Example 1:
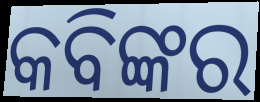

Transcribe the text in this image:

କବିଙ୍କର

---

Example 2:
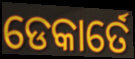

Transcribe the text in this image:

ଡେକାର୍ତେ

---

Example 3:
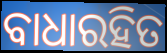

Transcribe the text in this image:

ବାଧାରହିତ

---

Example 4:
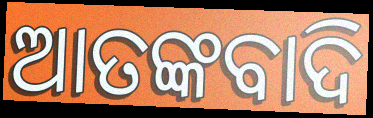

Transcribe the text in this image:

ଆତଙ୍କବାଦି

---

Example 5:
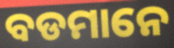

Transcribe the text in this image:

ବଡମାନେ